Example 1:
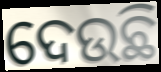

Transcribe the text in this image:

ଦେଉଛି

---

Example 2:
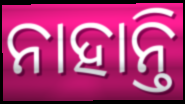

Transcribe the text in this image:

ନାହାନ୍ତି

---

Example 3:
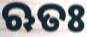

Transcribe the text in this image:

ଋତଃ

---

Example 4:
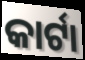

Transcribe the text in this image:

କାର୍ଟା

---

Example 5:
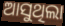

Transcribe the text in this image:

ଆସୁଥିଲା